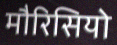
मौरिसियो